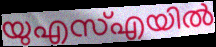
യുഎസ്എയിൽ